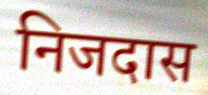
निजदास